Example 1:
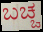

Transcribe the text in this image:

ಬಚ್ಚ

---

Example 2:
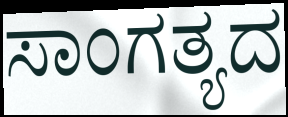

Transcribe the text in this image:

ಸಾಂಗತ್ಯದ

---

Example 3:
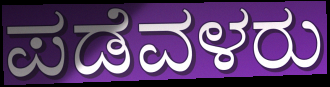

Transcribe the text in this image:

ಪಡೆವಳರು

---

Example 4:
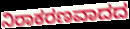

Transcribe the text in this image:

ನಿರಾಕರಣವಾದದ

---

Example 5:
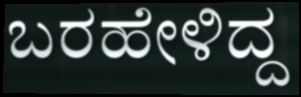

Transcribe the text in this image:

ಬರಹೇಳಿದ್ದ